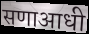
सणाआधी